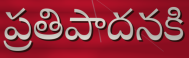
ప్రతిపాదనకి